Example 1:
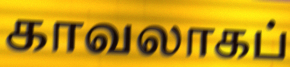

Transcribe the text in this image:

காவலாகப்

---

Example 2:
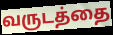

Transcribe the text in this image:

வருடத்தை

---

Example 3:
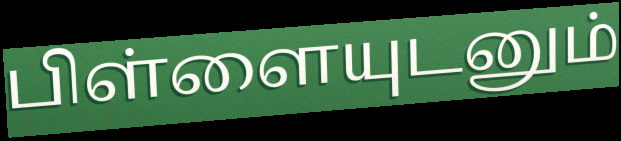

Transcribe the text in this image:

பிள்ளையுடனும்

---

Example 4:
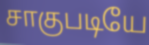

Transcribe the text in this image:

சாகுபடியே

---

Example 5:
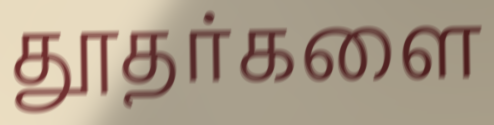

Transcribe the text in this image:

தூதர்களை